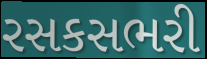
રસકસભરી